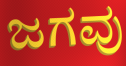
ಜಗವು